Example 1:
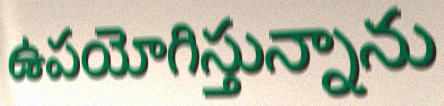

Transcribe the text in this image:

ఉపయోగిస్తున్నాను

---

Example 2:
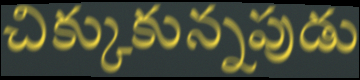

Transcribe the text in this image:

చిక్కుకున్నపుడు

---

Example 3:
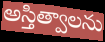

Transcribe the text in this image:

అస్తిత్వాలను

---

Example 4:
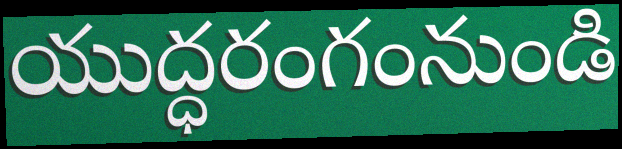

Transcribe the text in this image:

యుద్ధరంగంనుండి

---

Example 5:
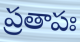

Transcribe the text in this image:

ప్రతాపః